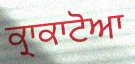
ਕ੍ਰਾਕਾਟੋਆ